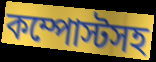
কম্পোস্টসহ